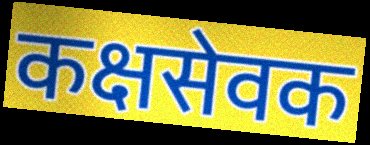
कक्षसेवक